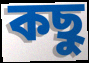
কছু